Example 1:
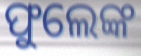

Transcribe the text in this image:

ଫୁଲେଙ୍କ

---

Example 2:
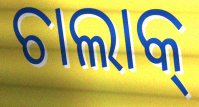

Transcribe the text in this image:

ଚାଲାକ୍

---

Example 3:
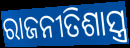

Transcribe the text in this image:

ରାଜନୀତିଶାସ୍ତ୍ର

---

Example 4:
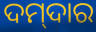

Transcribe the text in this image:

ଦମ୍‌ଦାର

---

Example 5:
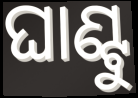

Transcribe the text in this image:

ଘାଣ୍ଟୁ